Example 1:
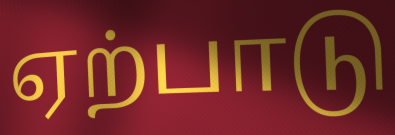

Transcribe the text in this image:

ஏற்பாடு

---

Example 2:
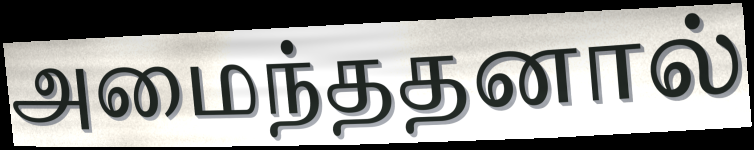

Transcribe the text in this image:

அமைந்ததனால்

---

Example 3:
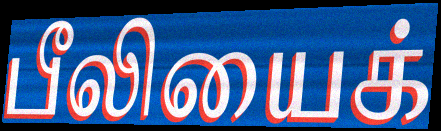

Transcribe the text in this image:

பீலியைக்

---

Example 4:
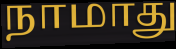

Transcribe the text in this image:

நாமாது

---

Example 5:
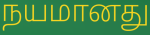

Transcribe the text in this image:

நயமானது